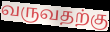
வருவதற்கு